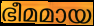
ഭീമമായ